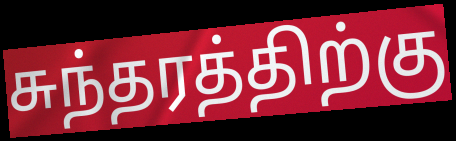
சுந்தரத்திற்கு